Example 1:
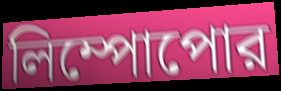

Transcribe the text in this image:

লিম্পোপোর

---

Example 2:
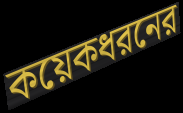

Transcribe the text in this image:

কয়েকধরনের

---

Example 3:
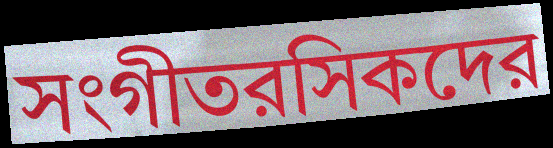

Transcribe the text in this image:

সংগীতরসিকদের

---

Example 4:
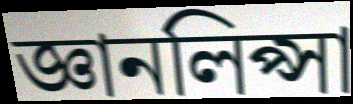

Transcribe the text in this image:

জ্ঞানলিপ্সা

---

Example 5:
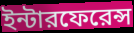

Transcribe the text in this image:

ইন্টারফেরেন্স